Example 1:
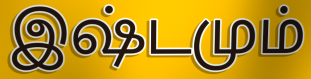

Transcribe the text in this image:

இஷ்டமும்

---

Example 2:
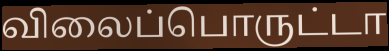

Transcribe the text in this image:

விலைப்பொருட்டா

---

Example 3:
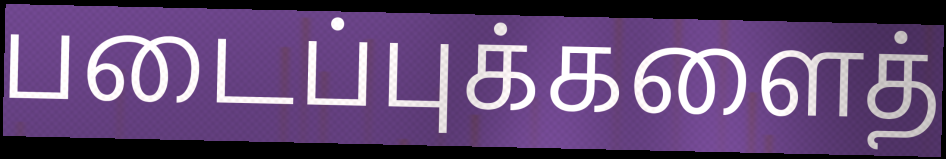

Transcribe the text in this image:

படைப்புக்களைத்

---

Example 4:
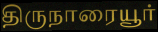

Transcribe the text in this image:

திருநாரையூர்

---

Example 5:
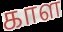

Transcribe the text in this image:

காள